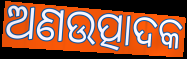
ଅଣଉତ୍ପାଦକ